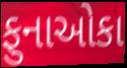
ફુનાઓકા